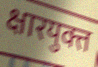
क्षारयुक्त